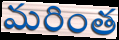
మరింత